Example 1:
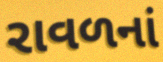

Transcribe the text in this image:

રાવળનાં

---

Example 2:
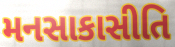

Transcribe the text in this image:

મનસાકાસીતિ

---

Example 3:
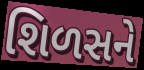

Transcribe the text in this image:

શિળસને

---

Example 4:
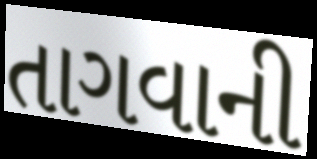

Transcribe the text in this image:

તાગવાની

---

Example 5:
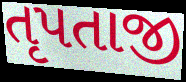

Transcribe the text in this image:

તૃપતાજી